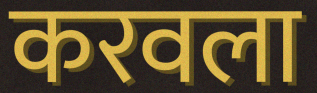
करवला